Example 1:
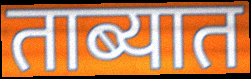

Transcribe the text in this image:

ताब्यात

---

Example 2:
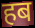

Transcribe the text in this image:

हब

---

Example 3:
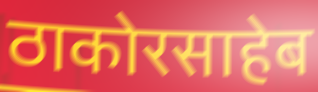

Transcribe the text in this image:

ठाकोरसाहेब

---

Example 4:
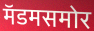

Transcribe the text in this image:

मॅडमसमोर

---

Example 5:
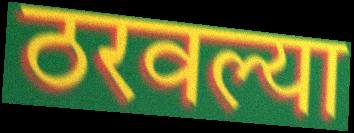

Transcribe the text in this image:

ठरवल्या